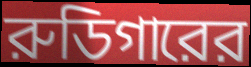
রুডিগারের